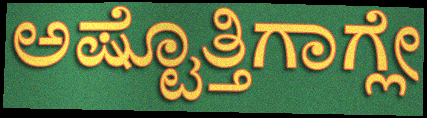
ಅಷ್ಟೊತ್ತಿಗಾಗ್ಲೇ